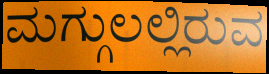
ಮಗ್ಗುಲಲ್ಲಿರುವ